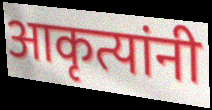
आकृत्यांनी